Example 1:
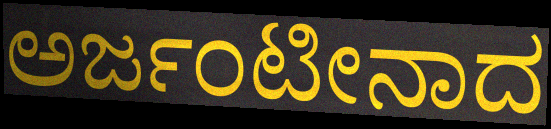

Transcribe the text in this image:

ಅರ್ಜಂಟೀನಾದ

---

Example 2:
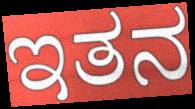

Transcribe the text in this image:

ಇತನ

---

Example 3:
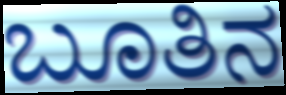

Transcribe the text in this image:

ಬೂತಿನ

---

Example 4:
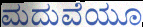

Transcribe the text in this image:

ಮದುವೆಯೂ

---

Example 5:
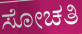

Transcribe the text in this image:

ಸೋಚತಿ